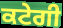
ਕਟੇਗੀ